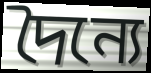
দৈন্যে